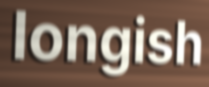
longish